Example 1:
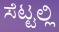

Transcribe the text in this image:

ಸೆಟ್ಟಲ್ಲಿ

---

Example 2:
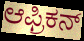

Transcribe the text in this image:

ಆಫ್ರಿಕನ್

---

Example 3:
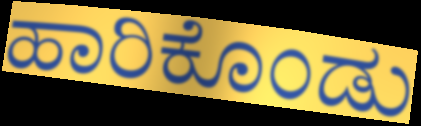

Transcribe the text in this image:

ಹಾರಿಕೊಂಡು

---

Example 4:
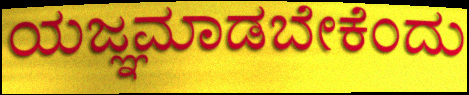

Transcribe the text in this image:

ಯಜ್ಞಮಾಡಬೇಕೆಂದು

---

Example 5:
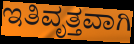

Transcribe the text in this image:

ಇತಿವೃತ್ತವಾಗಿ